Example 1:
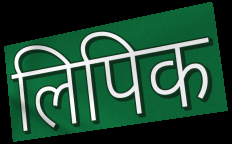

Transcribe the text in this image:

लिपिक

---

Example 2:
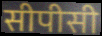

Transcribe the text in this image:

सीपीसी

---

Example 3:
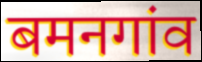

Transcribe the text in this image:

बमनगांव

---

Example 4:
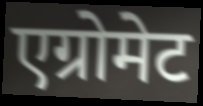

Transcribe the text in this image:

एग्रोमेट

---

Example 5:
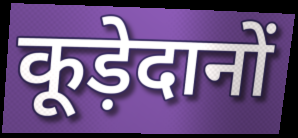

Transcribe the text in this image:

कूड़ेदानों